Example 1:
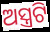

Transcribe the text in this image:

ଅସ୍ତ୍ରଟି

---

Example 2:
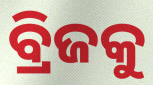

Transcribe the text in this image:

ବ୍ରିଜକୁ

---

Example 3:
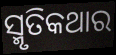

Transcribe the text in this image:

ସ୍ମୃତିକଥାର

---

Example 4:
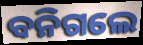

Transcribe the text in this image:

ବନିଗଲେ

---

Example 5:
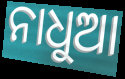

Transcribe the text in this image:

ନାଧୁଆ